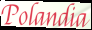
Polandia